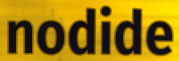
nodide